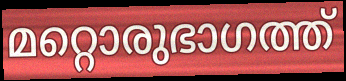
മറ്റൊരുഭാഗത്ത്